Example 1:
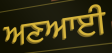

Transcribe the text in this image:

ਅਣਆਈ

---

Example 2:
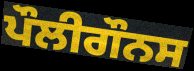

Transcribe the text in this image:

ਪੌਲੀਗੌਨਸ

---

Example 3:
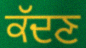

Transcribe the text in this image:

ਕੱਦਣ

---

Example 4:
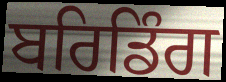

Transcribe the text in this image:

ਬਰਿਡਿੰਗ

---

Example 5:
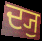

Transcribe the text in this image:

ਦ੍ਯੁ